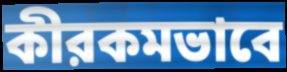
কীরকমভাবে